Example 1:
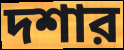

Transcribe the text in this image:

দশার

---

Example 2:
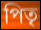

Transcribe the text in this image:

পিতৃ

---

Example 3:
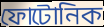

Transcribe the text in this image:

ফোটোনিক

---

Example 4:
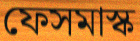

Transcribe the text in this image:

ফেসমাস্ক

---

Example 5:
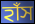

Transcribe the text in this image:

হাঁস